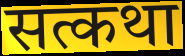
सत्कथा